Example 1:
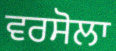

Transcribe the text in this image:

ਵਰਸੋਲਾ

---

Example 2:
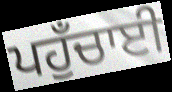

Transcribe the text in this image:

ਪਹੁਁਚਾਈ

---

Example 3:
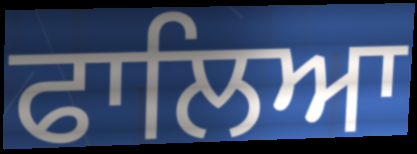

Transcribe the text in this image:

ਫਾਲਿਆ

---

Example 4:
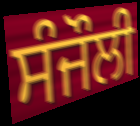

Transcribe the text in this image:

ਸੰਜੌਲੀ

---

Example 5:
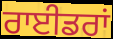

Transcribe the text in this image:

ਰਾਈਡਰਾਂ